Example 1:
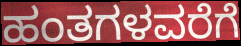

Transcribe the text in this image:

ಹಂತಗಳವರೆಗೆ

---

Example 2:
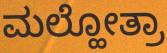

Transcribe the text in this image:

ಮಲ್ಹೋತ್ರಾ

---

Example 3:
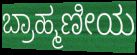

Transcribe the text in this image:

ಬ್ರಾಹ್ಮಣೀಯ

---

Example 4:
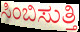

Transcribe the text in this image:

ಸಿಂಬಿಸುತ್ತಿ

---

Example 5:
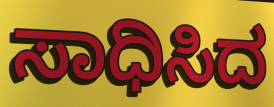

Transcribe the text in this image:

ಸಾಧಿಸಿದ